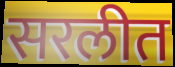
सरलीत